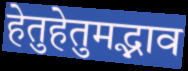
हेतुहेतुमद्भाव